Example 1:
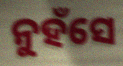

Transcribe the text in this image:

ନୁହଁସେ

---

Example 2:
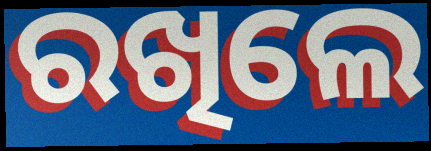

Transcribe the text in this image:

ରଖିଲେ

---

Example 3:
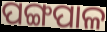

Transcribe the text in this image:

ପଙ୍ଗପାଳ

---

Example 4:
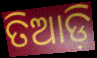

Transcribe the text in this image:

ତିଆଡ଼ି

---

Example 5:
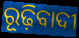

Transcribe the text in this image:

ରୂଢ଼ିବାଦୀ